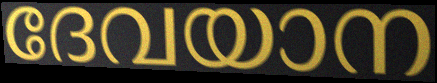
ദേവയാന